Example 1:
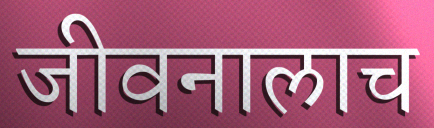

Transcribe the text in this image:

जीवनालाच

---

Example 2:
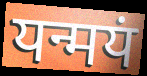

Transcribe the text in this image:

यन्मयं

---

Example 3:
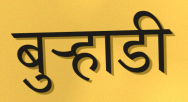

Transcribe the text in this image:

बुऱ्हाडी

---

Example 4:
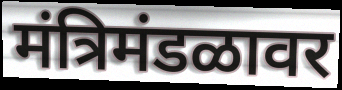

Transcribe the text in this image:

मंत्रिमंडळावर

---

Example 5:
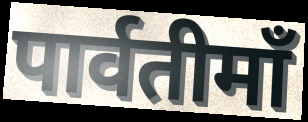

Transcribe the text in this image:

पार्वतीमाँ